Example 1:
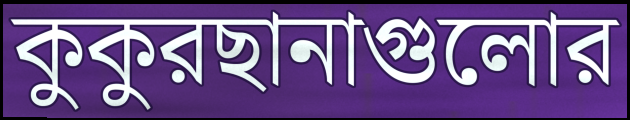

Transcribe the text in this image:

কুকুরছানাগুলোর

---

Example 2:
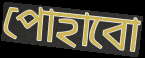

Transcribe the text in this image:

পোহাবো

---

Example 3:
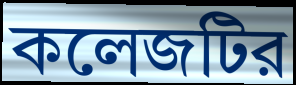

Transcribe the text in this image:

কলেজটির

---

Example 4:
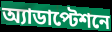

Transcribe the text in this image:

অ্যাডাপ্টেশনে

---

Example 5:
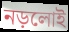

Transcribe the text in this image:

নড়লোই